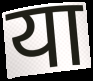
या